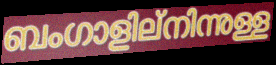
ബംഗാളില്നിന്നുള്ള